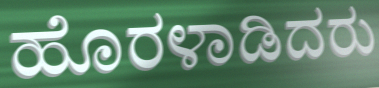
ಹೊರಳಾಡಿದರು